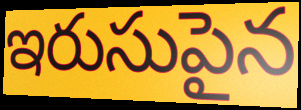
ఇరుసుపైన